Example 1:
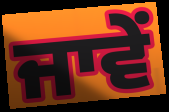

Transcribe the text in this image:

ਜਾਵੇਂ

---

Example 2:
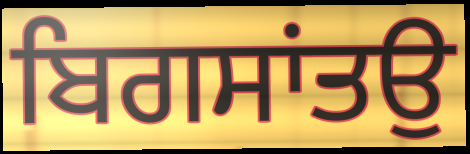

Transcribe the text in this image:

ਬਿਗਸਾਂਤਉ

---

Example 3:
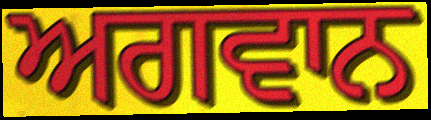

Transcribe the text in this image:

ਅਗਵਾਨ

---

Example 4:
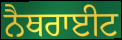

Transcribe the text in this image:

ਨੈਥਰਾਈਟ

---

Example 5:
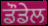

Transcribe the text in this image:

ਡੌਡੇਲ